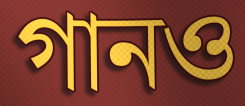
গানও